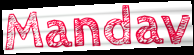
Mandav